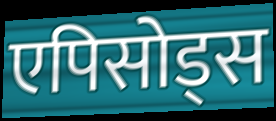
एपिसोड्स